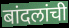
बांदलांची